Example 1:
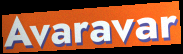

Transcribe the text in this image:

Avaravar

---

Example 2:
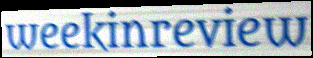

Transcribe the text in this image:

weekinreview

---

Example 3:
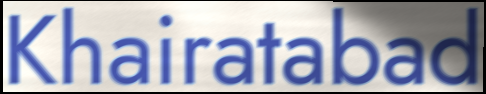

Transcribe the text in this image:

Khairatabad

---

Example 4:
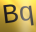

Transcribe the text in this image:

Bq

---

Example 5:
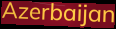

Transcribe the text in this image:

Azerbaijan